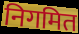
निगमित